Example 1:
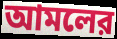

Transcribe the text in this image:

আমলের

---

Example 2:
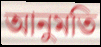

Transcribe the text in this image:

আনুমতি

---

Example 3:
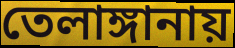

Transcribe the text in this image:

তেলাঙ্গানায়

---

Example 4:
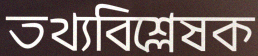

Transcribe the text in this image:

তথ্যবিশ্লেষক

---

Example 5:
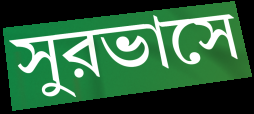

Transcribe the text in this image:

সুরভাসে